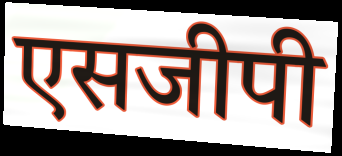
एसजीपी